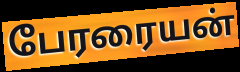
பேரரையன்